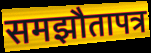
समझौतापत्र